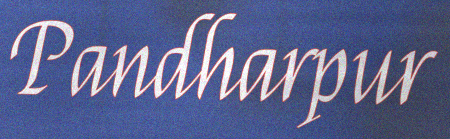
Pandharpur